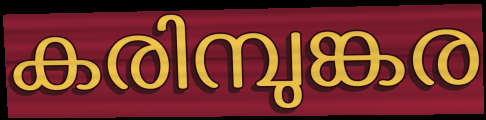
കരിമ്പുങ്കര